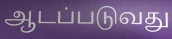
ஆடப்படுவது